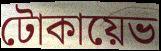
টোকায়েভ